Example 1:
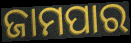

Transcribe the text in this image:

ଜାମପାର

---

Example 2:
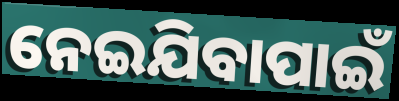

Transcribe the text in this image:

ନେଇଯିବାପାଇଁ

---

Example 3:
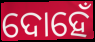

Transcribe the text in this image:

ଦୋହେଁ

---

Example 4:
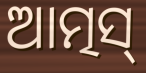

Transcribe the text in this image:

ଆତ୍ମସ୍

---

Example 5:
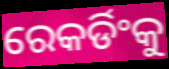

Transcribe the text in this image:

ରେକର୍ଡିଂକୁ